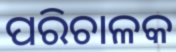
ପରିଚାଳକ